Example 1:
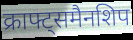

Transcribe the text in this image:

क्राफ्ट्समैनशिप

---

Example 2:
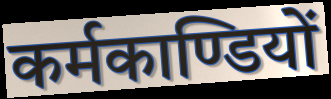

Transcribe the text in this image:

कर्मकाण्डियों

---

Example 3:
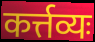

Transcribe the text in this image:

कर्त्तव्यः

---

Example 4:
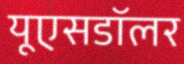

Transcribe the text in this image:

यूएसडॉलर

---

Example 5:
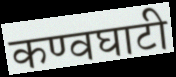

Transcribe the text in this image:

कण्वघाटी